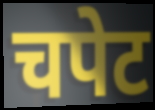
चपेट